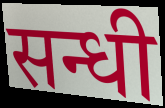
सन्धी